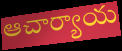
ఆచార్యాయ